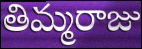
తిమ్మరాజు